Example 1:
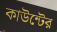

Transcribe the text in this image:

কাউন্টের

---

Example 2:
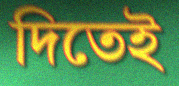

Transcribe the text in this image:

দিতেই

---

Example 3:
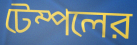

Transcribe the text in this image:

টেম্পলের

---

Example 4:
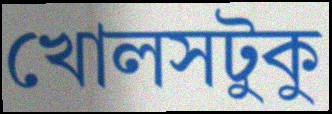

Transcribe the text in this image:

খোলসটুকু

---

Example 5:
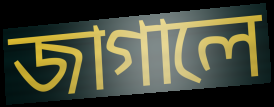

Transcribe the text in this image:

জাগালে